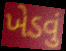
ખેડવું